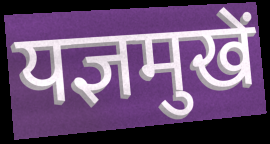
यज्ञमुखें